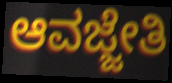
ಆವಜ್ಜೇತಿ